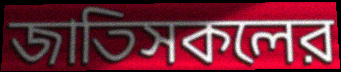
জাতিসকলের